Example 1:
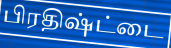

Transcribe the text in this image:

பிரதிஷ்ட்டை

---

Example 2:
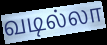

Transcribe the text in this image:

வடில்லா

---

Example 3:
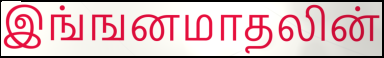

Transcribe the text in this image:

இங்ஙனமாதலின்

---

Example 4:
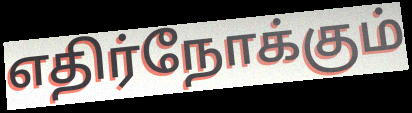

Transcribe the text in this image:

எதிர்நோக்கும்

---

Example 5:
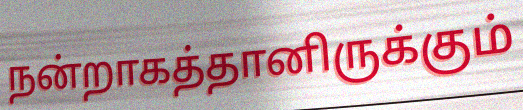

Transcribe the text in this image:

நன்றாகத்தானிருக்கும்